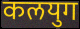
कलयुग